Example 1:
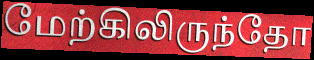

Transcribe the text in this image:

மேற்கிலிருந்தோ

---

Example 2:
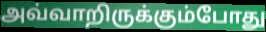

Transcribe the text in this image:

அவ்வாறிருக்கும்போது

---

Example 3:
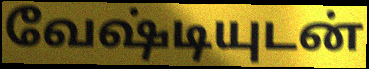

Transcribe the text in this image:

வேஷ்டியுடன்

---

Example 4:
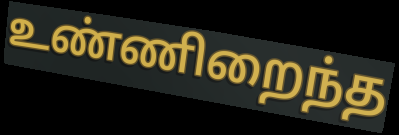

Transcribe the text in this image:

உண்ணிறைந்த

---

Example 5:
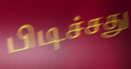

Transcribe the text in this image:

பிடிச்சது